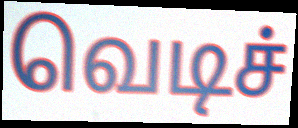
வெடிச்